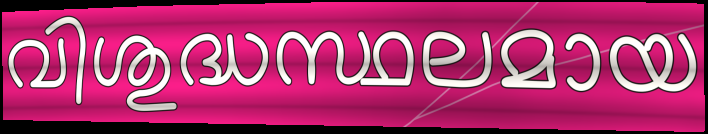
വിശുദ്ധസ്ഥലമായ